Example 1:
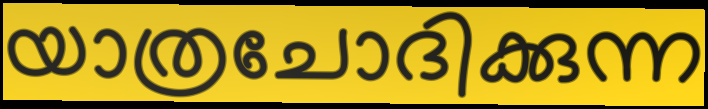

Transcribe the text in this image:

യാത്രചോദിക്കുന്ന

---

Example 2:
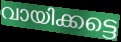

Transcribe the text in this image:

വായിക്കട്ടെ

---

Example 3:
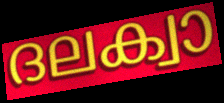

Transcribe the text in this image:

ദലക്വാ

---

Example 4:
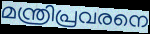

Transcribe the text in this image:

മന്ത്രിപ്രവരനെ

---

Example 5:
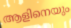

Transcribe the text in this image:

ആളിനെയും